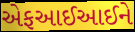
એફઆઈઆઈને